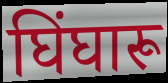
घिंघारू